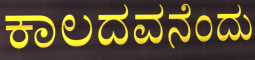
ಕಾಲದವನೆಂದು